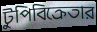
টুপিবিক্রেতার